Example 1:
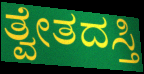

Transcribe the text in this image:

ತ್ವೇತದಸ್ತಿ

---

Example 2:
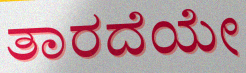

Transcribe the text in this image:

ತಾರದೆಯೇ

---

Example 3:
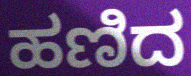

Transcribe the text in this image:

ಹಣಿದ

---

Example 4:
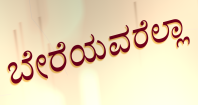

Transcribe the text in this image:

ಬೇರೆಯವರೆಲ್ಲಾ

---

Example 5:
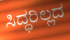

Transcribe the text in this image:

ಸಿದ್ಧರಿಲ್ಲದ